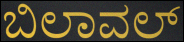
ಬಿಲಾವಲ್